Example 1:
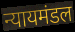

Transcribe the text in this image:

न्यायमंडल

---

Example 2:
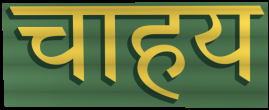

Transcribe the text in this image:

चाहय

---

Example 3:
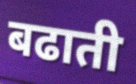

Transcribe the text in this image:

बढाती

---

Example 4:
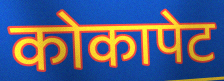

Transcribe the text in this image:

कोकापेट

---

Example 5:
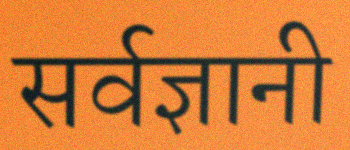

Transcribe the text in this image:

सर्वज्ञानी